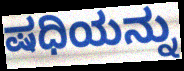
ಷಧಿಯನ್ನು